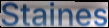
Staines